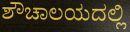
ಶೌಚಾಲಯದಲ್ಲಿ